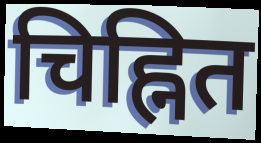
चिह्नित